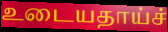
உடையதாய்ச்